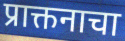
प्राक्तनाचा